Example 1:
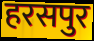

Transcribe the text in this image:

हरसपुर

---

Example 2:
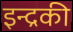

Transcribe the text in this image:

इन्द्रकी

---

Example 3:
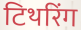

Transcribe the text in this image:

टिथरिंग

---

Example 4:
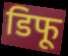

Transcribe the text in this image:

डिफू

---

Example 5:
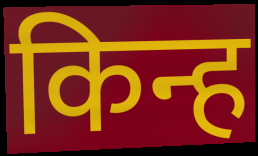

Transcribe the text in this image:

किन्ह